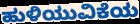
ಹುಳಿಯುವಿಕೆಯ